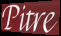
Pitre